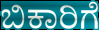
ಬಿಕಾರಿಗೆ